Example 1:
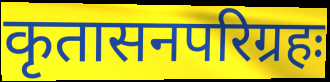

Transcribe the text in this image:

कृतासनपरिग्रहः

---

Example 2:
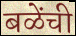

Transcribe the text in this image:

बळेंची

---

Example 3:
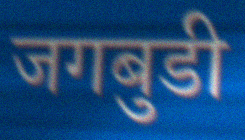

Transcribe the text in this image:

जगबुडी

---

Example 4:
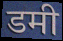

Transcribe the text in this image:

डमी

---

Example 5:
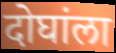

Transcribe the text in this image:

दोघांला